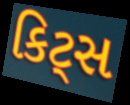
કિટ્સ